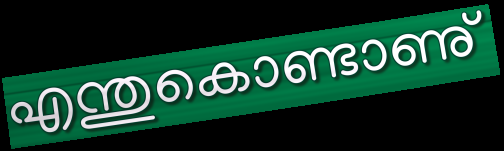
എന്തുകൊണ്ടാണു്